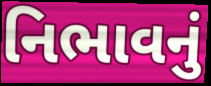
નિભાવનું